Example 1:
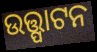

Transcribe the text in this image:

ଉତ୍ତ୍ପାଟନ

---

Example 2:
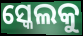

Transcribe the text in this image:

ସ୍କେଲକୁ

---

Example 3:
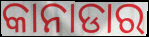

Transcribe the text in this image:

କାନାଡାର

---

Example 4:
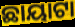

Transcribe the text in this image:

ଛାୟାଟା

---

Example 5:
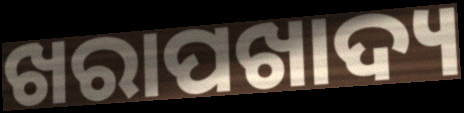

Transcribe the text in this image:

ଖରାପଖାଦ୍ୟ